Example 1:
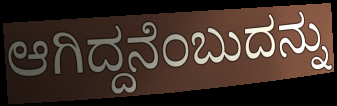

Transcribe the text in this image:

ಆಗಿದ್ದನೆಂಬುದನ್ನು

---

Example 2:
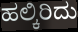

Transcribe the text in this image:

ಹಲ್ಕಿರಿದು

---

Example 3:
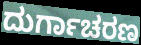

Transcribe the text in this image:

ದುರ್ಗಾಚರಣ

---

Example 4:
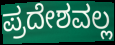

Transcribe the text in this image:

ಪ್ರದೇಶವಲ್ಲ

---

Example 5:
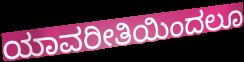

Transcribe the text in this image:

ಯಾವರೀತಿಯಿಂದಲೂ